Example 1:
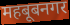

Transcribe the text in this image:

महबूबनगर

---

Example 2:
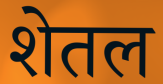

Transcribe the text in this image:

शेतल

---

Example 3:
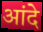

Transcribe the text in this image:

आंदे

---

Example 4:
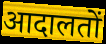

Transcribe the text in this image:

आदालतों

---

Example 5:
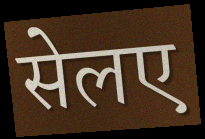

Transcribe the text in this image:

सेलए